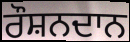
ਰੌਸ਼ਨਦਾਨ